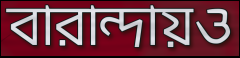
বারান্দায়ও